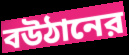
বউঠানের